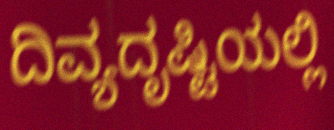
ದಿವ್ಯದೃಷ್ಟಿಯಲ್ಲಿ